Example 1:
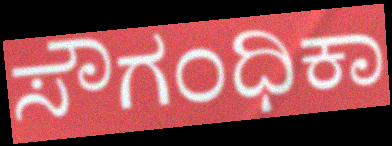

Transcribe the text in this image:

ಸೌಗಂಧಿಕಾ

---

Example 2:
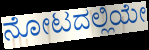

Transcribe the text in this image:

ನೋಟದಲ್ಲಿಯೇ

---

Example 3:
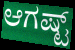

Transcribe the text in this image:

ಆಗಷ್ಟ್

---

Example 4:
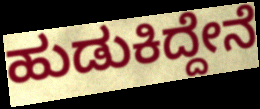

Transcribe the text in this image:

ಹುಡುಕಿದ್ದೇನೆ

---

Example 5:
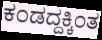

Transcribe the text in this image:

ಕಂಡದ್ದಕ್ಕಿಂತ